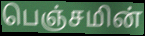
பெஞ்சமின்